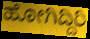
ಹೋಗಿದ್ದಿರಿ